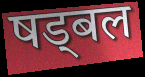
षड्बल